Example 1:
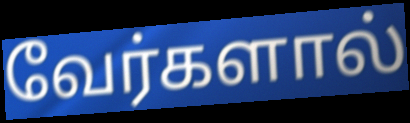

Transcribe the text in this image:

வேர்களால்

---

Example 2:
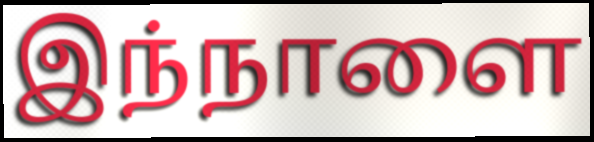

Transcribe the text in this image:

இந்நாளை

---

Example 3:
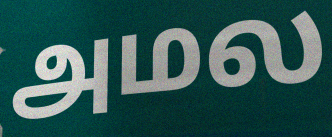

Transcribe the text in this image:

அமல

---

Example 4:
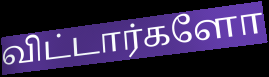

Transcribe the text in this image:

விட்டார்களோ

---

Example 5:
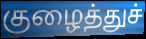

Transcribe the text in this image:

குழைத்துச்